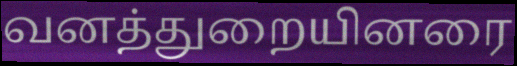
வனத்துறையினரை